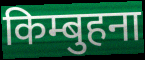
किम्बुहना